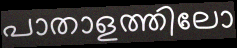
പാതാളത്തിലോ